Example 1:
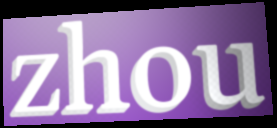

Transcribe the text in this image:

zhou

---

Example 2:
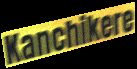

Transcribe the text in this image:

Kanchikere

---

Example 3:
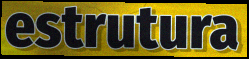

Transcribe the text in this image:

estrutura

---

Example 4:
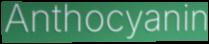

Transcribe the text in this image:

Anthocyanin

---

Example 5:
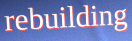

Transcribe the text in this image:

rebuilding